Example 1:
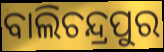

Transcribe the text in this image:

ବାଲିଚନ୍ଦ୍ରପୁର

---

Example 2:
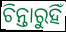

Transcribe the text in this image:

ଚିନ୍ତାରୁହିଁ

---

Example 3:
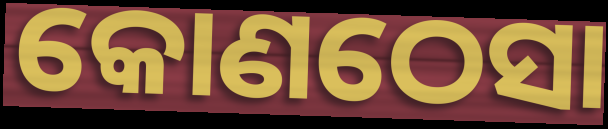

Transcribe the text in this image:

କୋଣଠେସା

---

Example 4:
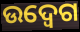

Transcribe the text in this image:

ଉଦ୍ବେଗ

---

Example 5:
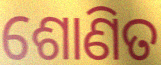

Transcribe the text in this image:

ଶୋଣିତ